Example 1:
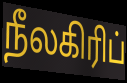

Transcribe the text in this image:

நீலகிரிப்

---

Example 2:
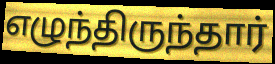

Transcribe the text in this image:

எழுந்திருந்தார்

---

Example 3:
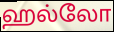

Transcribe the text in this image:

ஹல்லோ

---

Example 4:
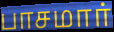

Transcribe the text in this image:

பாசமார்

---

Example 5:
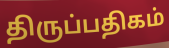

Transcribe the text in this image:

திருப்பதிகம்